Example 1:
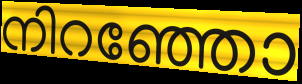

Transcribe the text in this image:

നിറഞ്ഞോ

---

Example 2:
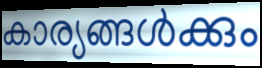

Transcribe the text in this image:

കാര്യങ്ങൾക്കും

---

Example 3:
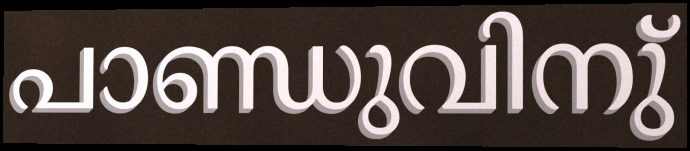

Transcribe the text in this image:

പാണ്ഡുവിനു്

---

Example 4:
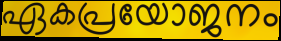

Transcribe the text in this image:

ഏകപ്രയോജനം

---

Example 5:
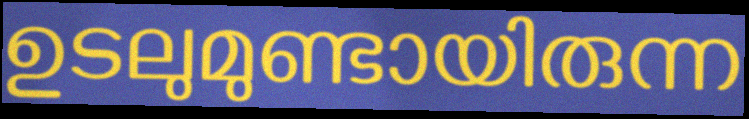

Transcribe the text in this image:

ഉടലുമുണ്ടായിരുന്ന